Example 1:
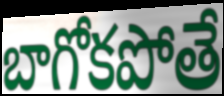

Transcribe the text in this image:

బాగోకపోతే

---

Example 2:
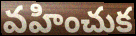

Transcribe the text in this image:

వహించుక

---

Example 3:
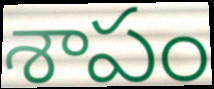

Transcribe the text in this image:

శాపం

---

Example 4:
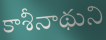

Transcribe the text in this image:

కాశీనాథుని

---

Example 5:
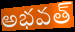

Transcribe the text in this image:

అభవత్